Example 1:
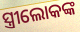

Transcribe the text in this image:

ସ୍ତ୍ରୀଲୋକଙ୍କ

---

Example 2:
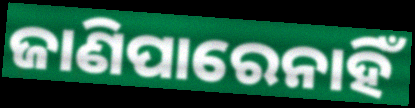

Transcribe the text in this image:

ଜାଣିପାରେନାହିଁ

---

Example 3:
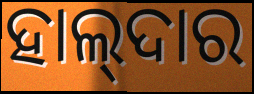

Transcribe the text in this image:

ହାଲ୍‌ଦାର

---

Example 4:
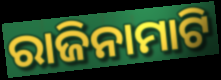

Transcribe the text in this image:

ରାଜିନାମାଟି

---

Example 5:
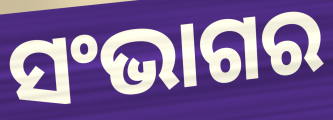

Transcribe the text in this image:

ସଂଭାଗର